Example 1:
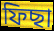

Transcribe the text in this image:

ফিছা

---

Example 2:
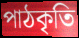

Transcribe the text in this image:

পাঠকৃতি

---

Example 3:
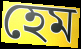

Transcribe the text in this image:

হেম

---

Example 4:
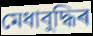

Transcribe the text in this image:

মেধাবুদ্ধিৰ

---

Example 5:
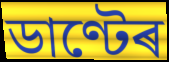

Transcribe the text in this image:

ডাণ্টেৰ